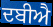
ਦਬੀਐ